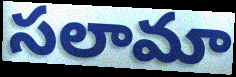
సలామా